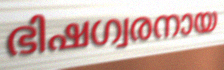
ഭിഷഗ്വരനായ